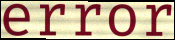
error